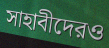
সাহাবীদেরও